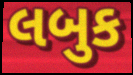
લબુક